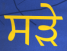
ਸੜੇ